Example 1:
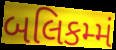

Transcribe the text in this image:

બલિકમ્મં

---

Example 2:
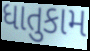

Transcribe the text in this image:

ધાતુકામ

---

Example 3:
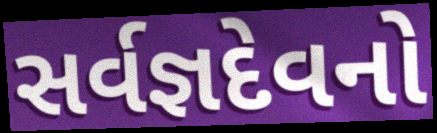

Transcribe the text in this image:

સર્વજ્ઞદેવનો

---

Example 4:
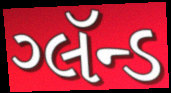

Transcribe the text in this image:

ગ્લૅન્ડ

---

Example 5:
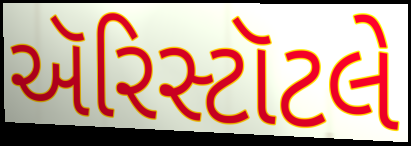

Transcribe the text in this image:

ઍરિસ્ટૉટલે